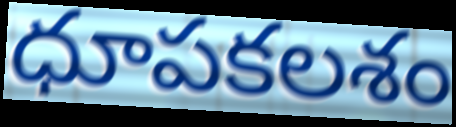
ధూపకలశం